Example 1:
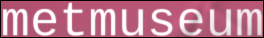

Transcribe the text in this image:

metmuseum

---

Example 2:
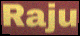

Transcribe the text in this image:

Raju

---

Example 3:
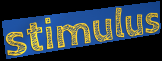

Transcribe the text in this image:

stimulus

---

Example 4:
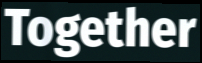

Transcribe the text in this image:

Together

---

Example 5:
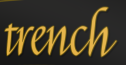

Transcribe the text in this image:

trench